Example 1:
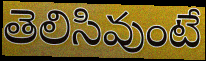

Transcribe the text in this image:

తెలిసివుంటే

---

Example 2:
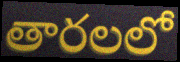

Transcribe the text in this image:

తారలలో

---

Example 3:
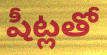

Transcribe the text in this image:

షీట్లతో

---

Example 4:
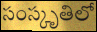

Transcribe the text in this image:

సంస్కృతిలో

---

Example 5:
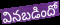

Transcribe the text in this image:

వినబడిందో